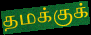
தமக்குக்